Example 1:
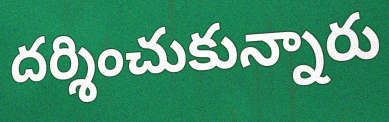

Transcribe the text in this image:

దర్శించుకున్నారు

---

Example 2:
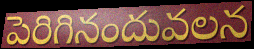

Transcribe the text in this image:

పెరిగినందువలన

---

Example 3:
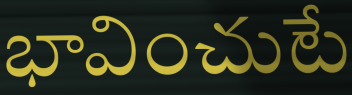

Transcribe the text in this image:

భావించుటే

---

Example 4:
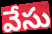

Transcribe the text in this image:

వేసు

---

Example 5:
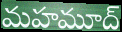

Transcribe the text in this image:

మహమూద్